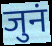
जुनं